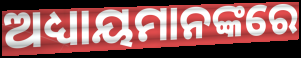
ଅଧ୍ୟାୟମାନଙ୍କରେ